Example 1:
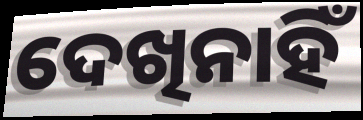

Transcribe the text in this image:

ଦେଖିନାହିଁ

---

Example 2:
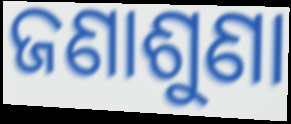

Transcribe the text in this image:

ଜଣାଶୁଣା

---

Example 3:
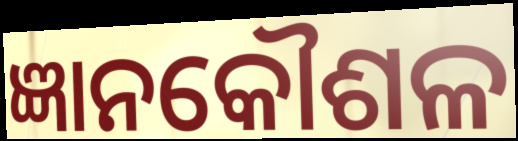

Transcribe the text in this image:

ଜ୍ଞାନକୌଶଳ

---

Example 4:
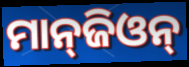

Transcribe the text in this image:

ମାନ୍‌ଜିଓନ୍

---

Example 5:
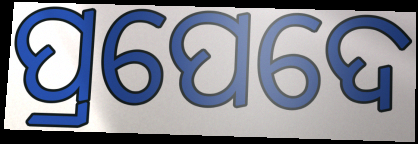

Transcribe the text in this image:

ପ୍ରପେଦେ